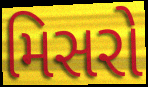
મિસરો